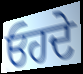
ਓਹਦੇ